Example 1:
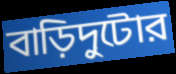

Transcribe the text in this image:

বাড়িদুটোর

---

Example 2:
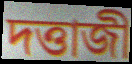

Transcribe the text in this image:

দত্তাজী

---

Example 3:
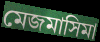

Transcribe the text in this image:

মেজমাসিমা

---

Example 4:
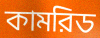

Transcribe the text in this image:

কামরিড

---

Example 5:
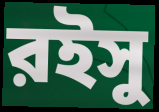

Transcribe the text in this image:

রইসু